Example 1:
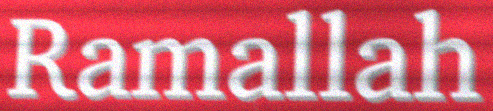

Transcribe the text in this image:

Ramallah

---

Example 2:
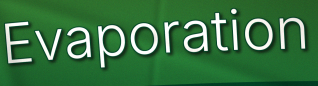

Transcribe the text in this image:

Evaporation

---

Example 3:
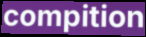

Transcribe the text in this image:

compition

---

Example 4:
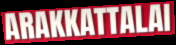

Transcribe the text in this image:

ARAKKATTALAI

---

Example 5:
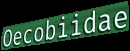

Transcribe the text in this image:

Oecobiidae